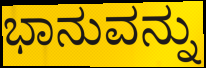
ಭಾನುವನ್ನು